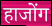
हाजोंग